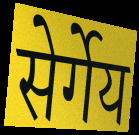
सेर्गेय